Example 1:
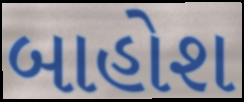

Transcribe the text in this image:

બાહોશ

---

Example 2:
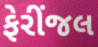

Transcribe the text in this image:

ફેરીંજલ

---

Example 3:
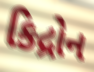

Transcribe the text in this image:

કિદ્રોન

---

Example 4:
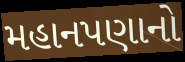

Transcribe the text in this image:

મહાનપણાનો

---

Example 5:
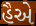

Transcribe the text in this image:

હૈએ